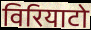
विरियाटो